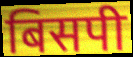
बिसपी